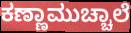
ಕಣ್ಣಾಮುಚ್ಚಾಲೆ